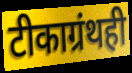
टीकाग्रंथही